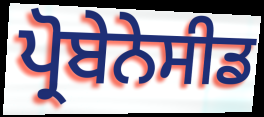
ਪ੍ਰੋਬੇਨੇਸੀਡ